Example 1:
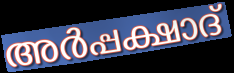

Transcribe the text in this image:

അർപ്പക്ഷാദ്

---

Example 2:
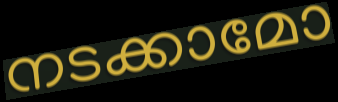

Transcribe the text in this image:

നടക്കാമോ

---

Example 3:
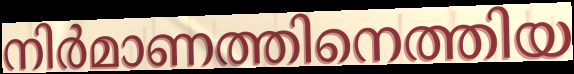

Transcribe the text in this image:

നിർമാണത്തിനെത്തിയ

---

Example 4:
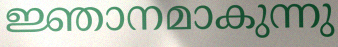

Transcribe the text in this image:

ജ്ഞാനമാകുന്നു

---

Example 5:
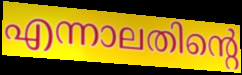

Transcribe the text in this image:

എന്നാലതിന്റെ